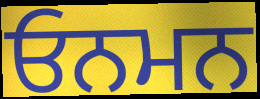
ਓਨਮਨ